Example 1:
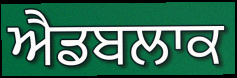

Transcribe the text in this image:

ਐਡਬਲਾਕ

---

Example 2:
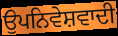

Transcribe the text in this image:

ਉਪਨਿਵੇਸ਼ਵਾਦੀ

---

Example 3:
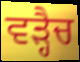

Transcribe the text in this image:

ਵੜ੍ਹੈਚ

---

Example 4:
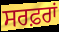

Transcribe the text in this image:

ਸਰਫ਼ਰਾਂ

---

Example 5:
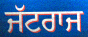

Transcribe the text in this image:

ਜੱਟਰਾਜ